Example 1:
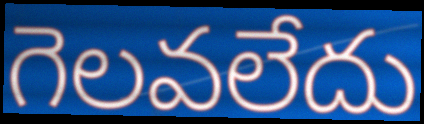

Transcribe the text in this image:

గెలవలేదు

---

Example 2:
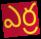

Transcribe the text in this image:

ఎర్ర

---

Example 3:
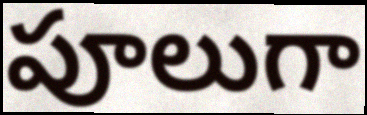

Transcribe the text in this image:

పూలుగా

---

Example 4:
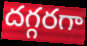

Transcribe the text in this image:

దగ్గరగా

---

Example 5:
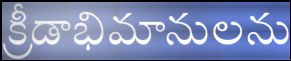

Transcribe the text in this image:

క్రీడాభిమానులను